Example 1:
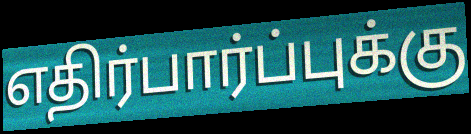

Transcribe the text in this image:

எதிர்பார்ப்புக்கு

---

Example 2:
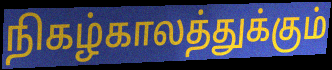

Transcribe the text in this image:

நிகழ்காலத்துக்கும்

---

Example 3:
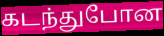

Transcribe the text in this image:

கடந்துபோன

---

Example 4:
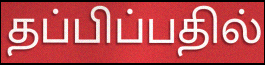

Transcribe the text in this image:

தப்பிப்பதில்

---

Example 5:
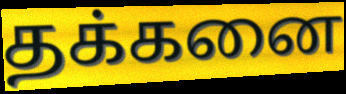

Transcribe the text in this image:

தக்கனை